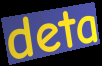
deta